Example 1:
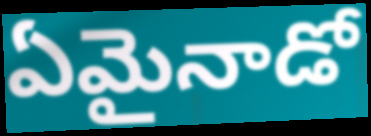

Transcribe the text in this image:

ఏమైనాడో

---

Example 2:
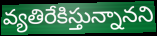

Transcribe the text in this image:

వ్యతిరేకిస్తున్నానని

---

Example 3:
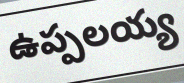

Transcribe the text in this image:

ఉప్పలయ్య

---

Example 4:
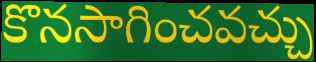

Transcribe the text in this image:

కొనసాగించవచ్చు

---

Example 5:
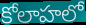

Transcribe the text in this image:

కోలాహలో